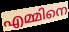
എമ്മിനെ